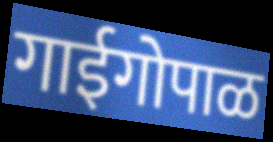
गाईगोपाळ